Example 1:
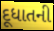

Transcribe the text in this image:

દૂધાતની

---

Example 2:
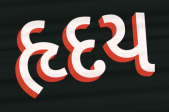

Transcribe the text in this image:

હૃદય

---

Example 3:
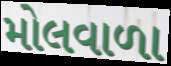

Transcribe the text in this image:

મોલવાળા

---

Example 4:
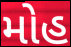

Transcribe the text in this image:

મોહ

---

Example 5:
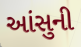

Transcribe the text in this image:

આંસુની